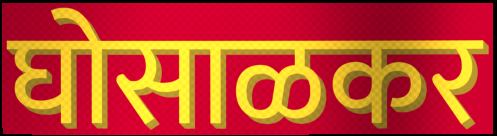
घोसाळकर